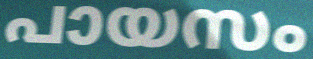
പായസം